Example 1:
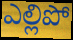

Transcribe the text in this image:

ఎల్లిపో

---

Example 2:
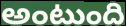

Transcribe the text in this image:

అంటుంది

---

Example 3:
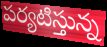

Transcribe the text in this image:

పర్యటిస్తున్న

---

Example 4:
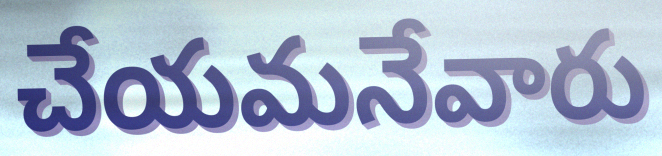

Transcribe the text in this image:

చేయమనేవారు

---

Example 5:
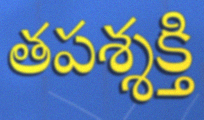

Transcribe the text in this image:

తపశ్శక్తి